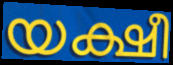
യക്ഷീ